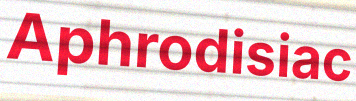
Aphrodisiac